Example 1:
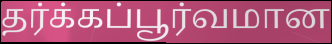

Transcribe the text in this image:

தர்க்கப்பூர்வமான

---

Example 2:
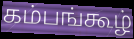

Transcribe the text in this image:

கம்பங்கூழ்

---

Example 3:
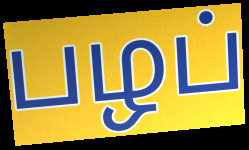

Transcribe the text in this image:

பழப்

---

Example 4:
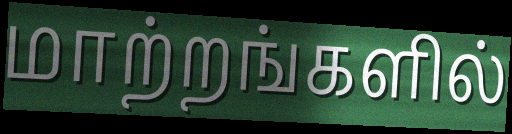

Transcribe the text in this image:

மாற்றங்களில்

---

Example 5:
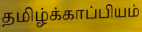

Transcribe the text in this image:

தமிழ்க்காப்பியம்